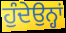
ਹੁੰਦੇਉਨ੍ਹਾਂ